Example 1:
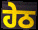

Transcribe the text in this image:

ਹੇਠ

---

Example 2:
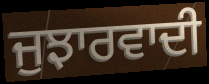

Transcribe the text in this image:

ਜੁਝਾਰਵਾਦੀ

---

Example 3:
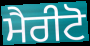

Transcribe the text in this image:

ਮੈਰੀਟੋ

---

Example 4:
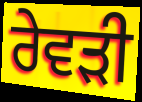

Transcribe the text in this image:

ਰੇਵੜੀ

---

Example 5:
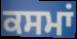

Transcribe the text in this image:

ਕਸਮਾਂ